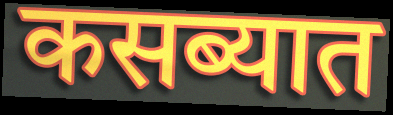
कसब्यात